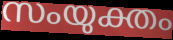
സംയുക്തം